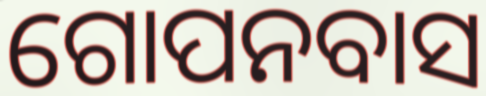
ଗୋପନବାସ